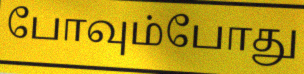
போவும்போது